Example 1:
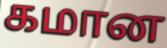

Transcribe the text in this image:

கமான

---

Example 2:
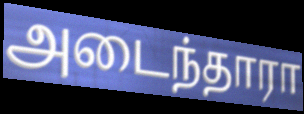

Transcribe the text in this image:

அடைந்தாரா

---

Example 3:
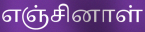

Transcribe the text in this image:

எஞ்சினாள்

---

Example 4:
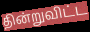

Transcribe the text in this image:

தின்றுவிட்ட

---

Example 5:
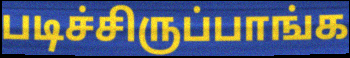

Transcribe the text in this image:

படிச்சிருப்பாங்க